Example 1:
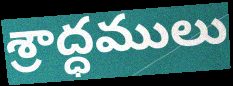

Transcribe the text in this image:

శ్రాద్ధములు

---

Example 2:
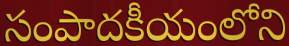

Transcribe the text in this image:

సంపాదకీయంలోని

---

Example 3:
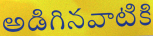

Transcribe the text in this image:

అడిగినవాటికి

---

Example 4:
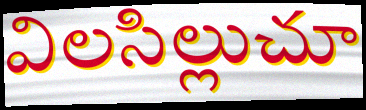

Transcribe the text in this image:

విలసిల్లుచూ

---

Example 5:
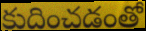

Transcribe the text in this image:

కుదించడంతో